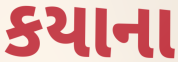
કયાના